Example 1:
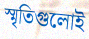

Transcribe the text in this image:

স্মৃতিগুলোই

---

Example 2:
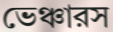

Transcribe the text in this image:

ভেঞ্চারস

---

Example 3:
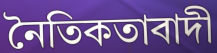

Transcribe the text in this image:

নৈতিকতাবাদী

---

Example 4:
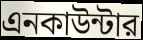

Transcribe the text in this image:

এনকাউন্টার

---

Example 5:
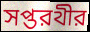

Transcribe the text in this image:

সপ্তরথীর